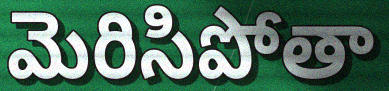
మెరిసిపోతా